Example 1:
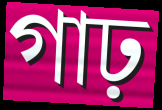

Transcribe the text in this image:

গাঢ়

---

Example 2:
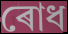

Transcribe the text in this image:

ৰোধ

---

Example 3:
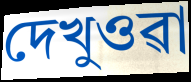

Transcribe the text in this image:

দেখুওৱা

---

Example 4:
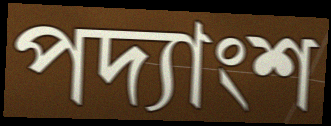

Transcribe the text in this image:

পদ্যাংশ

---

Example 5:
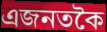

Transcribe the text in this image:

এজনতকৈ